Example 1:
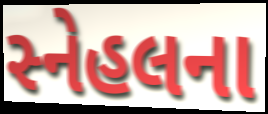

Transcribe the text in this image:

સ્નેહલના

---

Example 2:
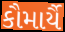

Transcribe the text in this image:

કૌમાર્યૈ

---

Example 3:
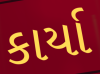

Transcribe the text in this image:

કાર્યા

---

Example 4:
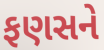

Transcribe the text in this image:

ફણસને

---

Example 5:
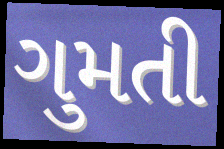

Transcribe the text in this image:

ગુમતી